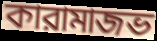
কারামাজভ